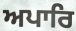
ਅਪਾਰਿ